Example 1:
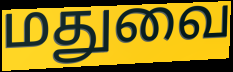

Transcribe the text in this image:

மதுவை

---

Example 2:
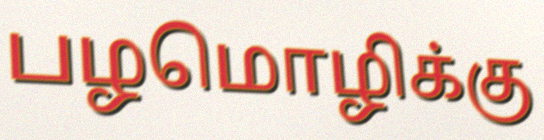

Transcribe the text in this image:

பழமொழிக்கு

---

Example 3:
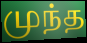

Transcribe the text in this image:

முந்த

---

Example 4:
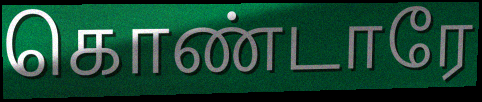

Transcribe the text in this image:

கொண்டாரே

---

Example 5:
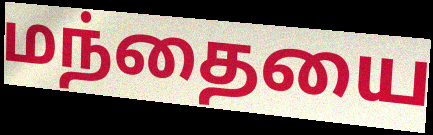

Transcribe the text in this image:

மந்தையை